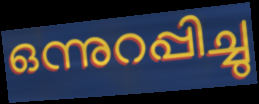
ഒന്നുറപ്പിച്ചു